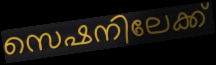
സെഷനിലേക്ക്